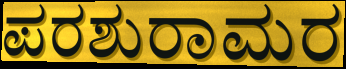
ಪರಶುರಾಮರ